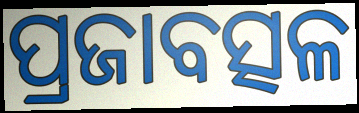
ପ୍ରଜାବତ୍ସଳ